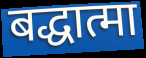
बद्धात्मा